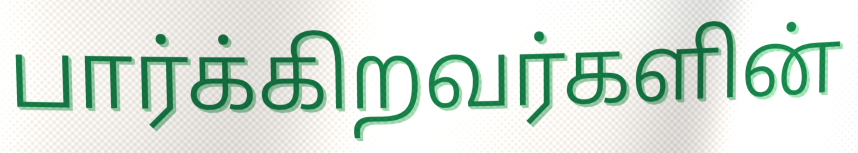
பார்க்கிறவர்களின்